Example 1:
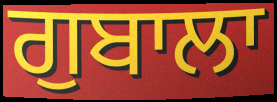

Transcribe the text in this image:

ਗੁਬਾਲਾ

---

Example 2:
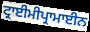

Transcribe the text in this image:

ਟ੍ਰਾਈਮੀਪ੍ਰਾਮਾਈਨ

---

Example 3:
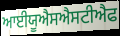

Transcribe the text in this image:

ਆਈਯੂਐਸਐਸਟੀਐਫ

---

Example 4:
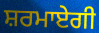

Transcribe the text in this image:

ਸ਼ਰਮਾਏਗੀ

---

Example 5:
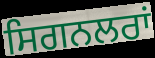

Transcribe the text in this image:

ਸਿਗਨਲਰਾਂ